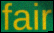
fair